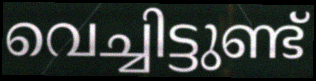
വെച്ചിട്ടുണ്ട്